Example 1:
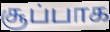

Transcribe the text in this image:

சூப்பாக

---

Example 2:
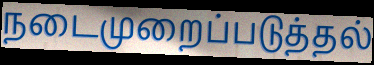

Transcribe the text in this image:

நடைமுறைப்படுத்தல்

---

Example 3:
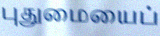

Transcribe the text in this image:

புதுமையைப்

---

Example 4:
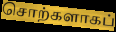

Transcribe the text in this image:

சொற்களாகப்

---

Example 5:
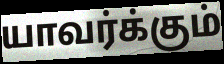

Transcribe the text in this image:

யாவர்க்கும்